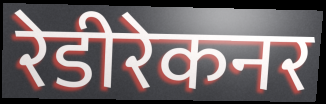
रेडीरेकनर